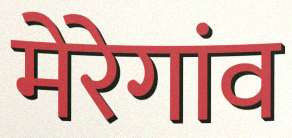
मेरेगांव